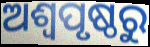
ଅଶ୍ଵପୃଷ୍ଠରୁ